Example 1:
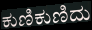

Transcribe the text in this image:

ಕುಣಿಕುಣಿದು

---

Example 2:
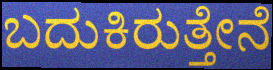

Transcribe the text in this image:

ಬದುಕಿರುತ್ತೇನೆ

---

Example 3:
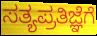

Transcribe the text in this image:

ಸತ್ಯಪ್ರತಿಜ್ಞೆಗೆ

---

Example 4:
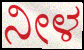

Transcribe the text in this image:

ನೀಳ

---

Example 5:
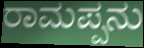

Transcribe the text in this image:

ರಾಮಪ್ಪನು